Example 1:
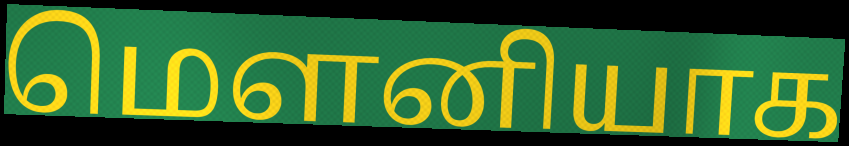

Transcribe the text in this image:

மெளனியாக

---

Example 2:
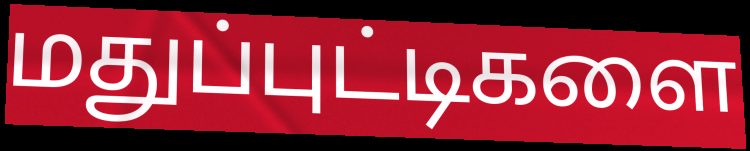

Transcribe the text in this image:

மதுப்புட்டிகளை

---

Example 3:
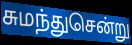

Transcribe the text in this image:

சுமந்துசென்று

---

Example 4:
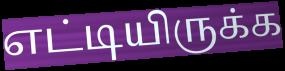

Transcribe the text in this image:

எட்டியிருக்க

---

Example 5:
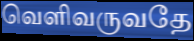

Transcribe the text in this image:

வெளிவருவதே